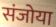
संजोया